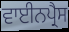
ਵਾਈਨਪ੍ਰੈਸ